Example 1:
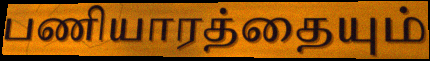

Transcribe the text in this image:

பணியாரத்தையும்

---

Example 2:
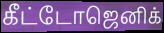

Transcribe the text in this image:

கீட்டோஜெனிக்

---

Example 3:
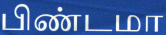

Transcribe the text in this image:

பிண்டமா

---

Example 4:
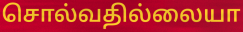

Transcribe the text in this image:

சொல்வதில்லையா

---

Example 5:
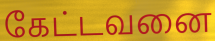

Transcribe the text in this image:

கேட்டவனை